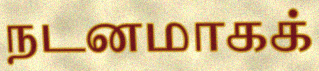
நடனமாகக்